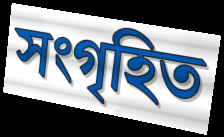
সংগৃহিত